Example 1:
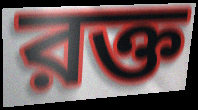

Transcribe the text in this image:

রক্ত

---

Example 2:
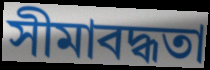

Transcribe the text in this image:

সীমাবদ্ধতা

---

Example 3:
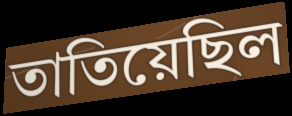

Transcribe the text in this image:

তাতিয়েছিল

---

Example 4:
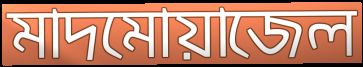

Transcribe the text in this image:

মাদমোয়াজেল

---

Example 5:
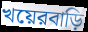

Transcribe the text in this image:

খয়েরবাড়ি